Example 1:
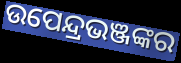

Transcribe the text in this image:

ଉପେନ୍ଦ୍ରଭଞ୍ଜଙ୍କର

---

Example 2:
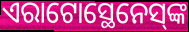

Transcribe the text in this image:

ଏରାଟୋସ୍ଥେନେସ୍‌ଙ୍କ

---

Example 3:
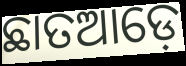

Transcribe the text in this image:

ଛାତଆଡ଼େ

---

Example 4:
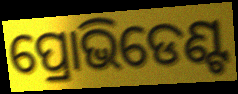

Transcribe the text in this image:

ପ୍ରୋଭିଡେଣ୍ଟ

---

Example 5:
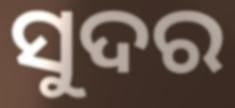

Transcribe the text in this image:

ସୁଦର